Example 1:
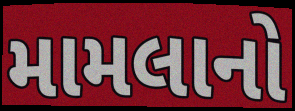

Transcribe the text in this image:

મામલાનો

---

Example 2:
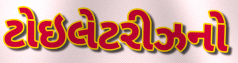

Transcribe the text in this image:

ટોઇલેટરીઝનો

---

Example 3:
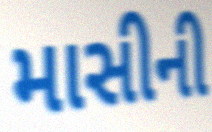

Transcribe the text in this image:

માસીની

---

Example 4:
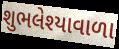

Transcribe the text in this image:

શુભલેશ્યાવાળા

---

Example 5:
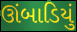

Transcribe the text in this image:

ઊંબાડિયું